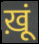
ख़ूं